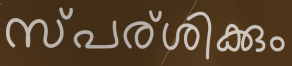
സ്പര്ശിക്കും